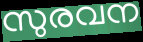
സുരവന